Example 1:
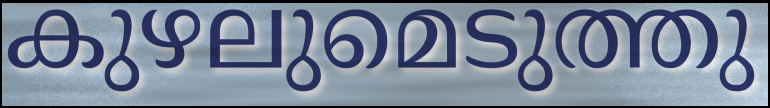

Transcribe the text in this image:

കുഴലുമെടുത്തു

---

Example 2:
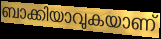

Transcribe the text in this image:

ബാക്കിയാവുകയാണ്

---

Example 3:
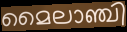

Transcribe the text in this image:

മൈലാഞ്ചി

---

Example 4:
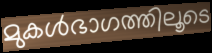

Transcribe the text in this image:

മുകൾഭാഗത്തിലൂടെ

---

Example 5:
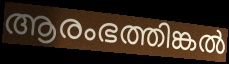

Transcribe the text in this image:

ആരംഭത്തിങ്കൽ